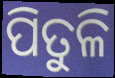
ପିତୁଳି